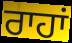
ਰਾਹਾਂ